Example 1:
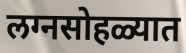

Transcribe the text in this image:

लग्नसोहळ्यात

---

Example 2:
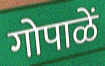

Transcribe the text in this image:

गोपाळें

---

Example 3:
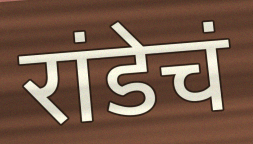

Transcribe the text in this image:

रांडेचं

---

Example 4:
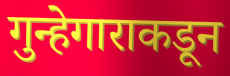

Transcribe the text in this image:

गुन्हेगाराकडून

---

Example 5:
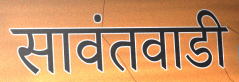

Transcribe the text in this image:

सावंतवाडी